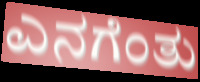
ಎನಗೆಂತು